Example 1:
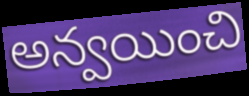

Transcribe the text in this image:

అన్వయించి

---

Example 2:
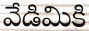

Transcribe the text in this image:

వేడిమికి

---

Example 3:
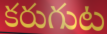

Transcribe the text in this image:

కరుగుట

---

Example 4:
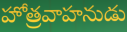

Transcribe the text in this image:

హోత్రవాహనుడు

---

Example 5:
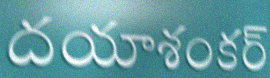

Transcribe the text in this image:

దయాశంకర్